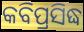
କବିପ୍ରସିଦ୍ଧ